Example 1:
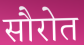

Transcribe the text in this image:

सौरोत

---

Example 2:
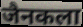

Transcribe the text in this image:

जैनकला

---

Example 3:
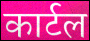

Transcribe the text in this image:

कार्टल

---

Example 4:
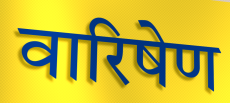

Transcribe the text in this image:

वारिषेण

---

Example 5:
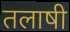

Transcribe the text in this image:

तलाषी